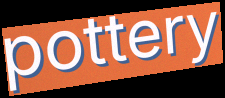
pottery